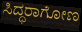
ಸಿದ್ಧರಾಗೋಣ